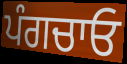
ਪੰਗਚਾਓ